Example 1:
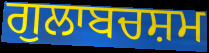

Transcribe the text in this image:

ਗੁਲਾਬਚਸ਼ਮ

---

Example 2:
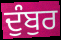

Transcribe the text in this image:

ਦੁੰਬੁਰ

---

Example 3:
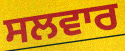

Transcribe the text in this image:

ਸਲਵਾਰ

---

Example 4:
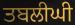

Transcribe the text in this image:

ਤਬਲੀਘੀ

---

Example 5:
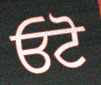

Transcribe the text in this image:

ਓਟੋ